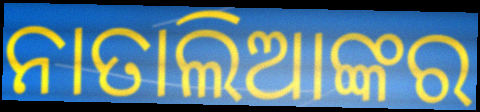
ନାତାଲିଆଙ୍କର